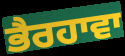
ਭੈਰਹਾਵਾ